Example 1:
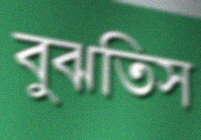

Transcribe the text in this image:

বুঝতিস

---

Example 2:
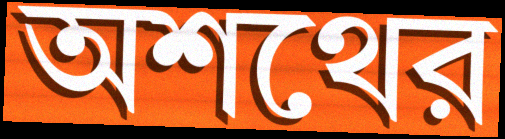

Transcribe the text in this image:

অশথের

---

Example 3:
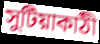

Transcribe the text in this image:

সুটিয়াকাঠী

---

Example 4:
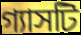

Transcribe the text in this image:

গ্যাসটি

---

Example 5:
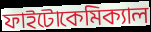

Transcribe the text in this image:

ফাইটোকেমিক্যাল